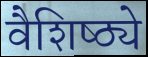
वैशिष्ठ्ये